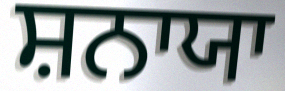
ਸ਼ਨਾਯਾ